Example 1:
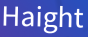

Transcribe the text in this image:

Haight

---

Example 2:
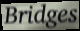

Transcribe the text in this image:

Bridges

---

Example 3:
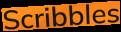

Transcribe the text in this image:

Scribbles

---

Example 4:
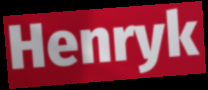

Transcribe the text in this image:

Henryk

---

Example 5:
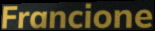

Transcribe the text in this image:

Francione